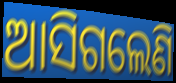
ଆସିଗଲେଣି